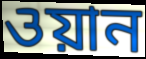
ওয়ান